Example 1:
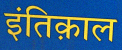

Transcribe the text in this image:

इंतिक़ाल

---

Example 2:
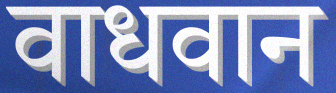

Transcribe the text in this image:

वाधवान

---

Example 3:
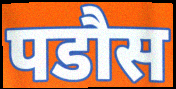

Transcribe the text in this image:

पडौस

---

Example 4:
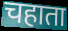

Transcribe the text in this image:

चहाता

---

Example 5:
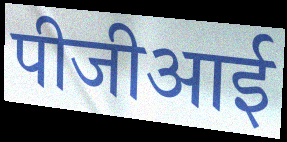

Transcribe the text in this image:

पीजीआई